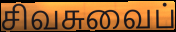
சிவசுவைப்